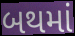
બથમાં